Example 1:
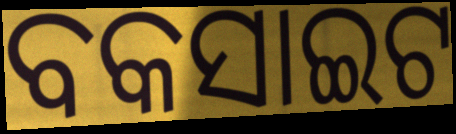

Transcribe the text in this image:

ବକସାଇଟ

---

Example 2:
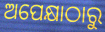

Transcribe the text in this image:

ଅପେକ୍ଷାଠାରୁ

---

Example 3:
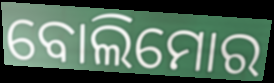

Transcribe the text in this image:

ବୋଲିମୋର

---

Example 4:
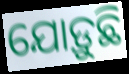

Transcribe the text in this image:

ଯୋଡ଼ୁଛି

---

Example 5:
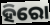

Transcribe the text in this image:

ହିରୋ